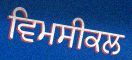
ਵਿਮਸੀਕਲ